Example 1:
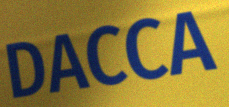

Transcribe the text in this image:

DACCA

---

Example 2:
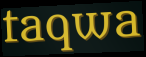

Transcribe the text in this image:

taqwa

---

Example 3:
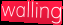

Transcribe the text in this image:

walling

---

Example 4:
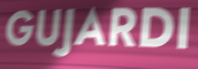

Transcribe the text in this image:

GUJARDI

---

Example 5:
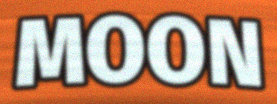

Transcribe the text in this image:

MOON